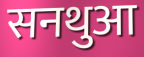
सनथुआ